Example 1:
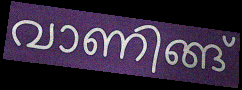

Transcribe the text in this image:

വാണിങ്ങ്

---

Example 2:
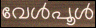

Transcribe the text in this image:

വേൾപൂൾ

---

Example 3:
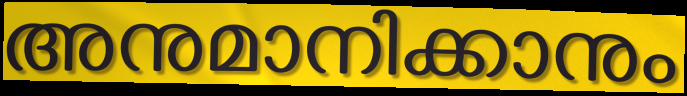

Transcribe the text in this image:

അനുമാനിക്കാനും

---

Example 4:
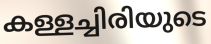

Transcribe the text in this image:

കള്ളച്ചിരിയുടെ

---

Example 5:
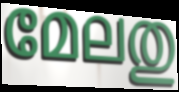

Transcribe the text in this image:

മേലതു